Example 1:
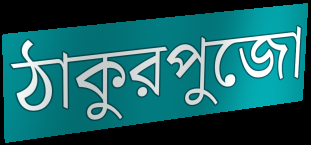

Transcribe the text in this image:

ঠাকুরপুজো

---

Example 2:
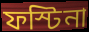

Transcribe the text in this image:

ফস্টিনা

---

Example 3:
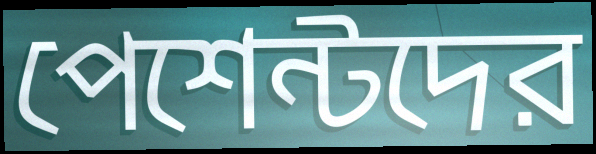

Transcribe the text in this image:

পেশেন্টদের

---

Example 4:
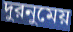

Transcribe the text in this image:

দুরনুমেয়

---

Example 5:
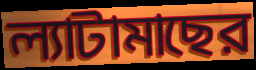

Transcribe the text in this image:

ল্যাটামাছের